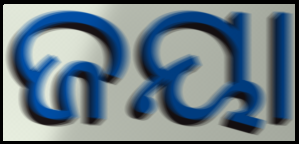
ଜୟା